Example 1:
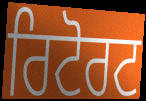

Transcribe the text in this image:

ਰਿਟੋਰਟ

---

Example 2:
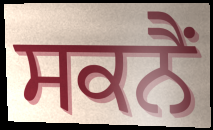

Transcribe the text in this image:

ਸਕਨੈਂ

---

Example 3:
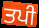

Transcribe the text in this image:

ਤਪੀ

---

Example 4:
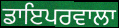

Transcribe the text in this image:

ਡਾਇਪਰਵਾਲਾ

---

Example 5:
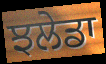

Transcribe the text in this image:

ਝਲੇਡਾ